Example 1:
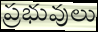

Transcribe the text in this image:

ప్రభువులు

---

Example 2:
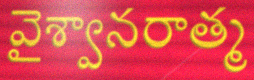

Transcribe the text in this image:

వైశ్వానరాత్మ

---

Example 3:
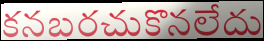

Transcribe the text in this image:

కనబరచుకొనలేదు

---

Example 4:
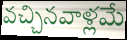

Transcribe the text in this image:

వచ్చినవాళ్లమే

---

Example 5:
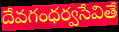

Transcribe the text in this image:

దేవగంధర్వసేవితే